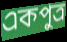
একপুত্র